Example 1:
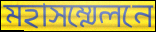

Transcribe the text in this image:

মহাসম্মেলনে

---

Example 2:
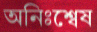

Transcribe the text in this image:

অনিঃশ্বেষ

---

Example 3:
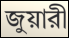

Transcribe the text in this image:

জুয়ারী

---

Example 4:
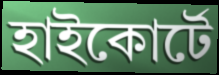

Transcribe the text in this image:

হাইকোর্টে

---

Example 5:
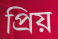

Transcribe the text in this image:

প্রিয়